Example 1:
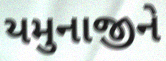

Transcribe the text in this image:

યમુનાજીને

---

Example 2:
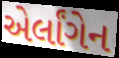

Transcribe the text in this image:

એર્લાંગેન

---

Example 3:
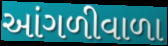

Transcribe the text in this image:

આંગળીવાળા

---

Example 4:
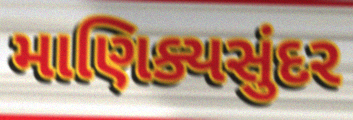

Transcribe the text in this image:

માણિક્યસુંદર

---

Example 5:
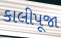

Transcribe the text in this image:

કાલીપૂજા